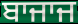
ਬਾਜਾਜ